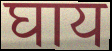
घाय